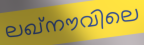
ലഖ്നൗവിലെ